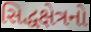
સિદ્ધક્ષેત્રનો